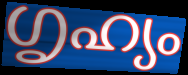
ഗൃഹ്യം